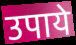
उपाये